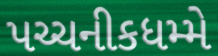
પચ્ચનીકધમ્મે